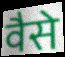
वैसे